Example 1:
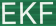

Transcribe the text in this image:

EKF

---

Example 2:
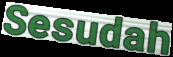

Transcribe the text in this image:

Sesudah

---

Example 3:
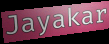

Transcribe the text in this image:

Jayakar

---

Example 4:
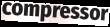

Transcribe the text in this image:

compressor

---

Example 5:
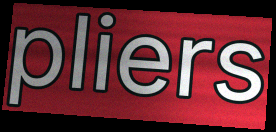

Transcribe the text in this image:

pliers